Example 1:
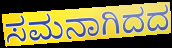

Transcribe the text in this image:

ಸಮನಾಗಿದದ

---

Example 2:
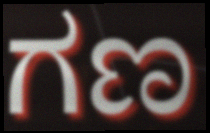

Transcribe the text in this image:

ಗಣ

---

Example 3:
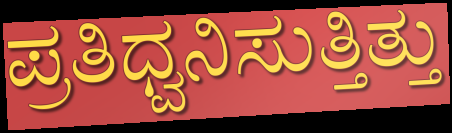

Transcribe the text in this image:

ಪ್ರತಿಧ್ವನಿಸುತ್ತಿತ್ತು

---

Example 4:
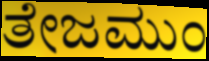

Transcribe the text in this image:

ತೇಜಮುಂ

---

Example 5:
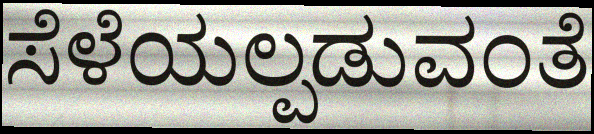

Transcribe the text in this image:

ಸೆಳೆಯಲ್ಪಡುವಂತೆ